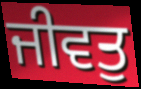
ਜੀਵਤੁ